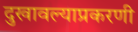
दुखावल्याप्रकरणी